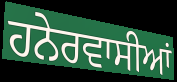
ਹਨੇਰਵਾਸੀਆਂ